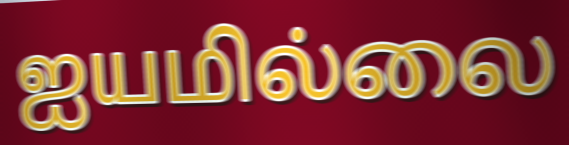
ஐயமில்லை